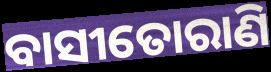
ବାସୀତୋରାଣି